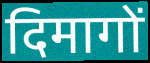
दिमागों